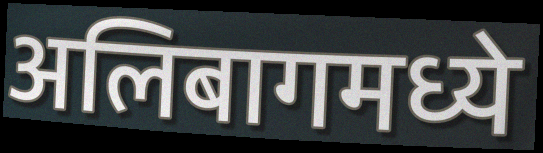
अलिबागमध्ये